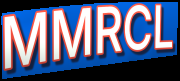
MMRCL